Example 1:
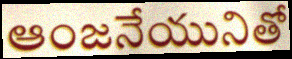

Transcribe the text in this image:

ఆంజనేయునితో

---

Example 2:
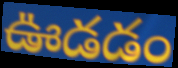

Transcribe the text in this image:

ఊడడం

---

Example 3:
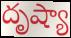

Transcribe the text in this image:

దృష్యా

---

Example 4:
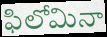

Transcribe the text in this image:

ఫిలోమినా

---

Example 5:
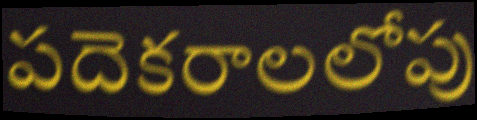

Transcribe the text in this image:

పదెకరాలలోపు